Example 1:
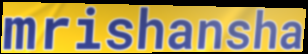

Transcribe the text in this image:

mrishansha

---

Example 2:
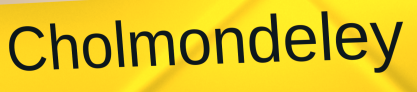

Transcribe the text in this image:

Cholmondeley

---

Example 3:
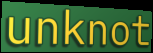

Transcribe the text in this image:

unknot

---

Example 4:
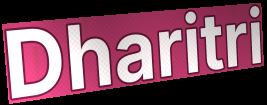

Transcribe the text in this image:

Dharitri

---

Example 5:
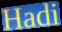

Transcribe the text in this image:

Hadi